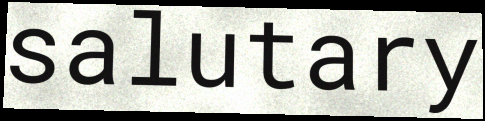
salutary